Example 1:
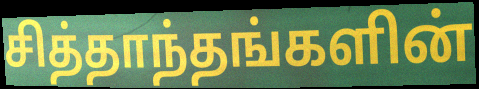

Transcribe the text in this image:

சித்தாந்தங்களின்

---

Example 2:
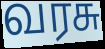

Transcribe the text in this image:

வரசு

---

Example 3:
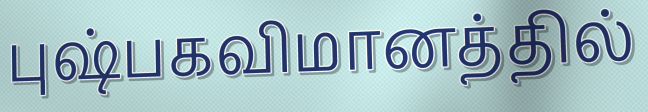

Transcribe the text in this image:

புஷ்பகவிமானத்தில்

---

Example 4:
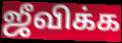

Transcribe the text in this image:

ஜீவிக்க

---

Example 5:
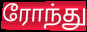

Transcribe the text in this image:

ரோந்து